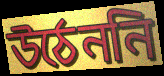
উঠেননি